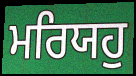
ਮਰਿਯਹੁ